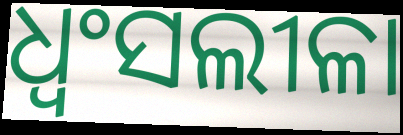
ଧ୍ବଂସଲୀଳା